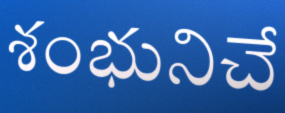
శంభునిచే